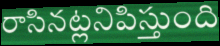
రాసినట్లనిపిస్తుంది